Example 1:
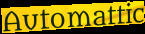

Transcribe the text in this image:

Automattic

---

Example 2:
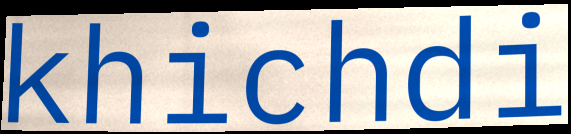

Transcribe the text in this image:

khichdi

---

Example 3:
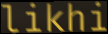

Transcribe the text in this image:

likhi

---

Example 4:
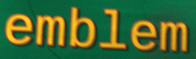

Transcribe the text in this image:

emblem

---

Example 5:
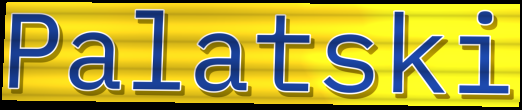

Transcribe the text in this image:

Palatski